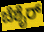
ಚೆಶೈರ್